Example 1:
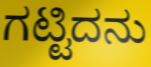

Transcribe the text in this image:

ಗಟ್ಟಿದನು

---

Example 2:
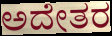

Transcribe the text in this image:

ಅದೇತರ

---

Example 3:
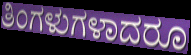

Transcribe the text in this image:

ತಿಂಗಳುಗಳಾದರೂ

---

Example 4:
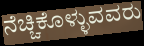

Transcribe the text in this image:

ನೆಚ್ಚಿಕೊಳ್ಳುವವರು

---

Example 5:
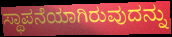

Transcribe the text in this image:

ಸ್ಥಾಪನೆಯಾಗಿರುವುದನ್ನು